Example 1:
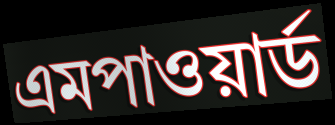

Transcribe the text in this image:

এমপাওয়ার্ড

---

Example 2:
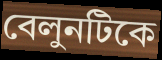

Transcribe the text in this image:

বেলুনটিকে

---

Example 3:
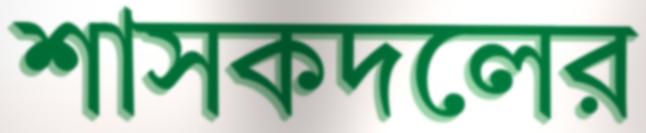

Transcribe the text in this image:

শাসকদলের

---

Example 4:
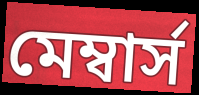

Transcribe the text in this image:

মেম্বার্স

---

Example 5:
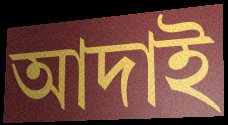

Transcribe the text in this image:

আদাই